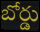
బోర్డు